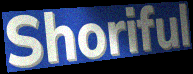
Shoriful